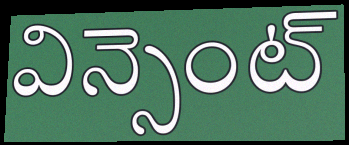
విన్సెంట్